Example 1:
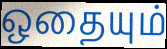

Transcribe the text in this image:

ஒதையும்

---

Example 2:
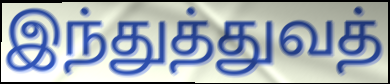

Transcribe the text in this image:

இந்துத்துவத்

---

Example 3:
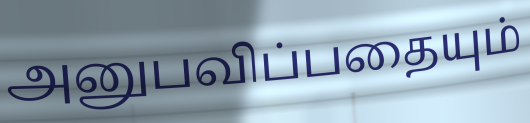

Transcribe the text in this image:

அனுபவிப்பதையும்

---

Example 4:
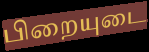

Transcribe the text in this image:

பிறையுடை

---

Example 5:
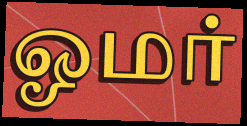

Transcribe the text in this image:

ஓமர்